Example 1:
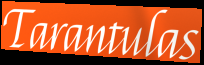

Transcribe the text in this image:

Tarantulas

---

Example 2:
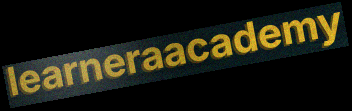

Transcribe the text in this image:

learneraacademy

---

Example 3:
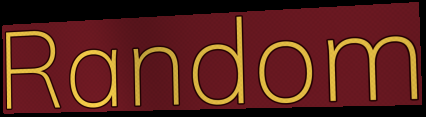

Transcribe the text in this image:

Random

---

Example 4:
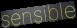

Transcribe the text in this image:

sensible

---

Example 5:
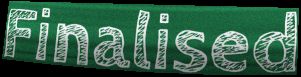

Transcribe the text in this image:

Finalised